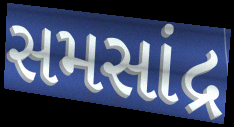
સમસાંદ્ર